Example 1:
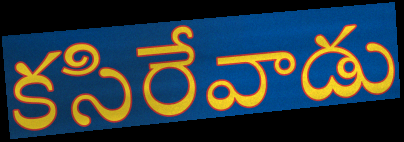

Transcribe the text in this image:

కసిరేవాడు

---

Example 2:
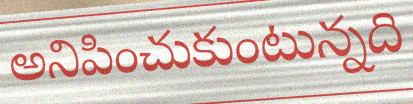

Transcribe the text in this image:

అనిపించుకుంటున్నది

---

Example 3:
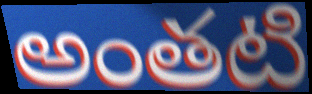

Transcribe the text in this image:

అంతటి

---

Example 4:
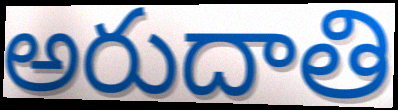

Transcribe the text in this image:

అరుదాతి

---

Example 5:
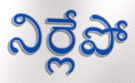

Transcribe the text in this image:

నిర్లేపో